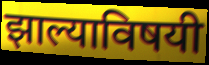
झाल्याविषयी